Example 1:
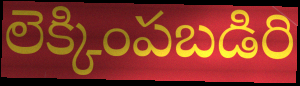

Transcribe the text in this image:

లెక్కింపబడిరి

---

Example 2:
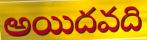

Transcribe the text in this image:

అయిదవది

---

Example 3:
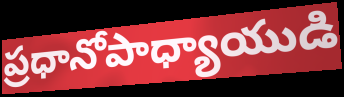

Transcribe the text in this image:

ప్రధానోపాధ్యాయుడి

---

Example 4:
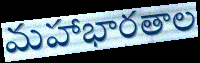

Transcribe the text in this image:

మహాభారతాల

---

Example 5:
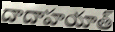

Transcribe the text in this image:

దాదాహయాత్